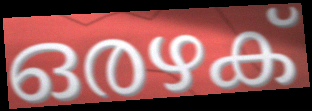
ഒരഴക്